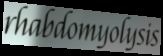
rhabdomyolysis